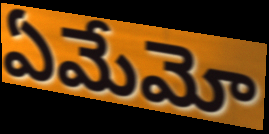
ఏమేమో